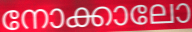
നോക്കാലോ